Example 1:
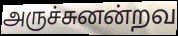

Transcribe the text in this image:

அருச்சுனன்றவ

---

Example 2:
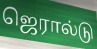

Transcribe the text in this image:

ஜெரால்டு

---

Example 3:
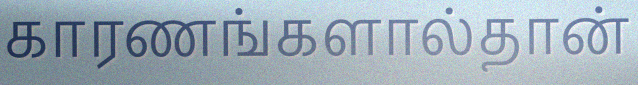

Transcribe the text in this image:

காரணங்களால்தான்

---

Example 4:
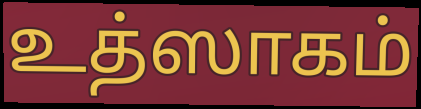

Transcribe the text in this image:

உத்ஸாகம்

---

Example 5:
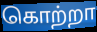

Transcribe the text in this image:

கொற்றா